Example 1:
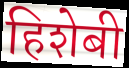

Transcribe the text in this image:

हिशेबी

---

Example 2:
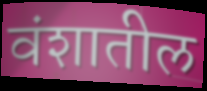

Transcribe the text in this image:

वंशातील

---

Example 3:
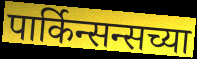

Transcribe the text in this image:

पार्किन्सन्सच्या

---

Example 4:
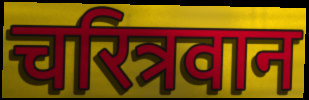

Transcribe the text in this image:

चरित्रवान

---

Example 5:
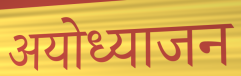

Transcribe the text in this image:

अयोध्याजन